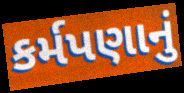
કર્મપણાનું